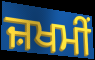
ਜ਼ਖਮੀਂ